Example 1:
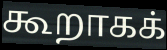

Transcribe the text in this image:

கூறாகக்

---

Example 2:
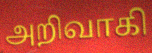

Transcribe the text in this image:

அறிவாகி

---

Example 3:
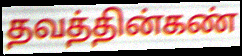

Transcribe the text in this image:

தவத்தின்கண்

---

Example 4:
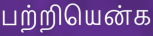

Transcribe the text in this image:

பற்றியென்க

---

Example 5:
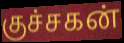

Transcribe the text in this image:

குச்சகன்